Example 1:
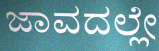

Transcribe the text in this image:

ಜಾವದಲ್ಲೇ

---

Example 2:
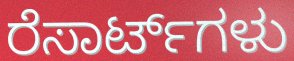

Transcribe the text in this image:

ರೆಸಾರ್ಟ್‌ಗಳು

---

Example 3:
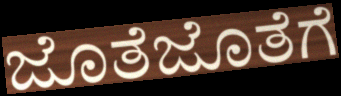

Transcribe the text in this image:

ಜೊತೆಜೊತೆಗೆ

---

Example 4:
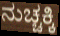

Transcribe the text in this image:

ನುಚ್ಚಕ್ಕಿ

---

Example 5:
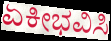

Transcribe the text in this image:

ಏಕೀಭವಿಸಿ